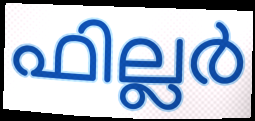
ഫില്ലർ